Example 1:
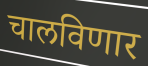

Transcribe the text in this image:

चालविणार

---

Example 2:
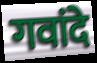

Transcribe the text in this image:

गवांदे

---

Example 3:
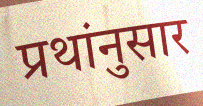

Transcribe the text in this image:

प्रथांनुसार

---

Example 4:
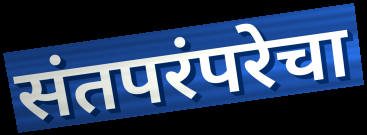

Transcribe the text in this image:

संतपरंपरेचा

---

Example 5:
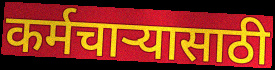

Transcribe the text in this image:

कर्मचाऱ्यासाठी